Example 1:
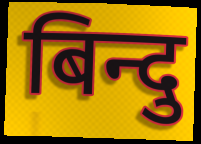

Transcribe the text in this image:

बिन्दु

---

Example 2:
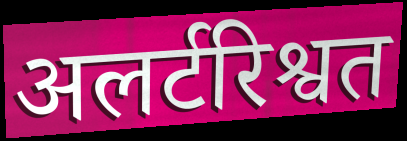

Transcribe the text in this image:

अलर्टरिश्वत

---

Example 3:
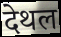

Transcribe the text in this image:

देथल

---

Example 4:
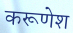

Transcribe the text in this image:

करूणेश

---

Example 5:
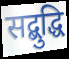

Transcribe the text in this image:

सद्बुद्धि